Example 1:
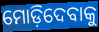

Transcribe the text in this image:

ମୋଡ଼ିଦେବାକୁ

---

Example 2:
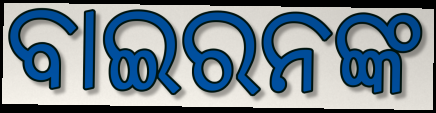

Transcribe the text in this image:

ବାଇରନଙ୍କ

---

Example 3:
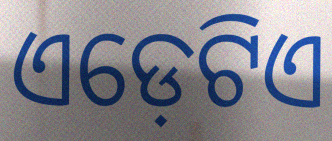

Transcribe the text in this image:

ଏଡ଼େଟିଏ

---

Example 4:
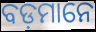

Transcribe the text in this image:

ବଡ଼ମାନେ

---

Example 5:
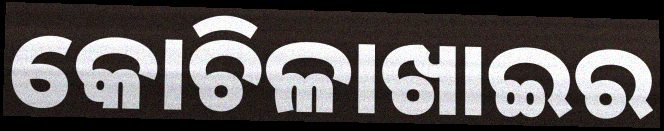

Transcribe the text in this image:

କୋଚିଳାଖାଇର